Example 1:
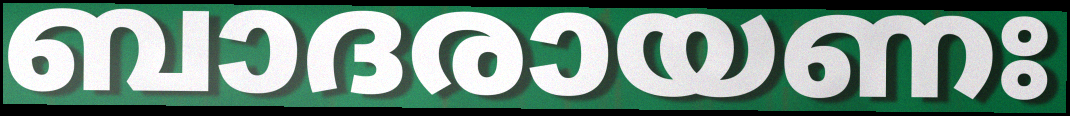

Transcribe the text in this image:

ബാദരായണഃ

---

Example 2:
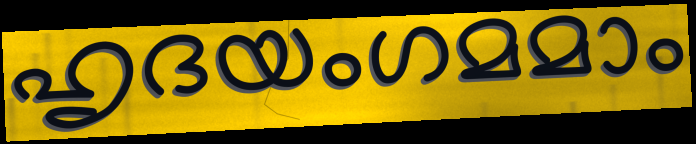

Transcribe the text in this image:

ഹൃദയംഗമമാം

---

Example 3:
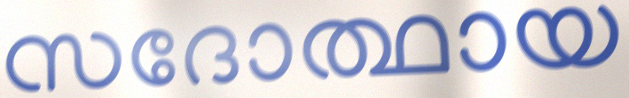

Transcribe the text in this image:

സദോത്ഥായ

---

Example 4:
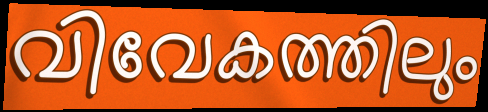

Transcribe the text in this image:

വിവേകത്തിലും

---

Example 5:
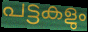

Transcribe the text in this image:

പട്ടകളും